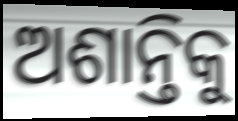
ଅଶାନ୍ତିକୁ